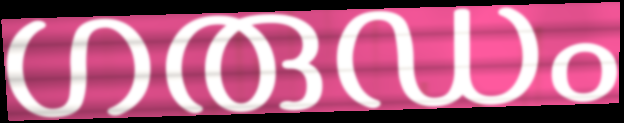
ഗരുഡം